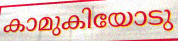
കാമുകിയോടു